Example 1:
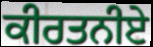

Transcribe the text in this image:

ਕੀਰਤਨੀਏ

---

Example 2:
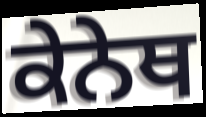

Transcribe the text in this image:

ਕੇਨੇਥ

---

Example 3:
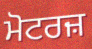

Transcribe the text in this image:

ਮੋਟਰਜ਼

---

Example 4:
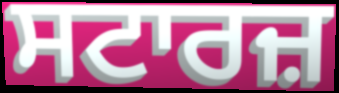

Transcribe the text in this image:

ਸਟਾਰਜ਼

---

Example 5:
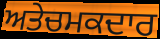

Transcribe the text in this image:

ਅਤੇਚਮਕਦਾਰ